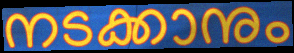
നടക്കാനും